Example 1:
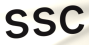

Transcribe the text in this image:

ssc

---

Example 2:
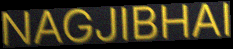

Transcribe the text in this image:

NAGJIBHAI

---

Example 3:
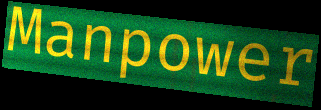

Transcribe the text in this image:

Manpower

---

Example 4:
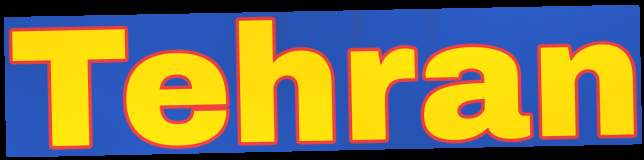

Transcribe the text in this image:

Tehran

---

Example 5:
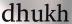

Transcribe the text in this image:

dhukh